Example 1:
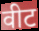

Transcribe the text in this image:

वीट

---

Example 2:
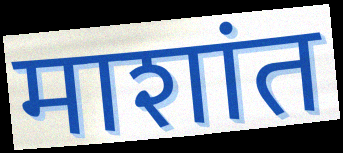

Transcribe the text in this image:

माशांत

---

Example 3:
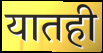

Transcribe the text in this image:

यातही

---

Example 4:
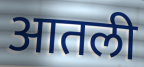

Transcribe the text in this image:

आतली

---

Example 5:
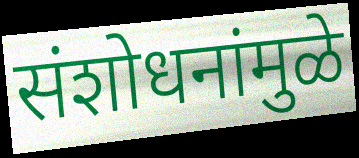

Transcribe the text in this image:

संशोधनांमुळे